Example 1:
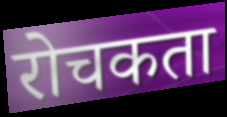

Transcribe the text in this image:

रोचकता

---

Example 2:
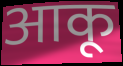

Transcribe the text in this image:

आकू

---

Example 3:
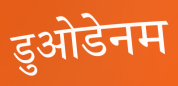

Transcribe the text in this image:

डुओडेनम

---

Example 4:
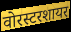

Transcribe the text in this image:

वोरस्टरशायर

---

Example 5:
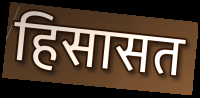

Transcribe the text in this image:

हिसासत